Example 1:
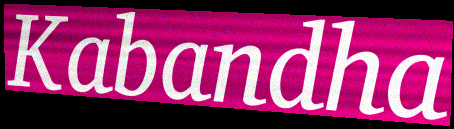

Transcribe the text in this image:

Kabandha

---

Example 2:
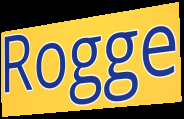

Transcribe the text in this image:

Rogge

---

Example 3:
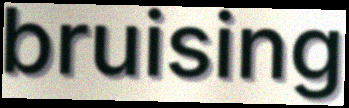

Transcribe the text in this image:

bruising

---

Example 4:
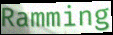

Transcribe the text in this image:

Ramming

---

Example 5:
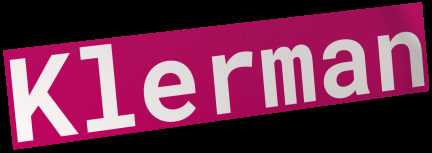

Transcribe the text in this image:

Klerman